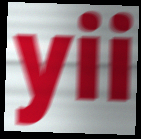
yii